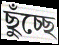
ছুঁচ্ছে